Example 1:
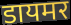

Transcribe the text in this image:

डायमर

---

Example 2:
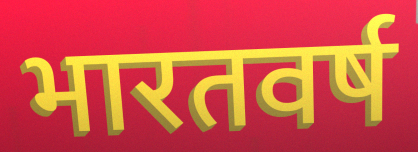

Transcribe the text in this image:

भारतवर्ष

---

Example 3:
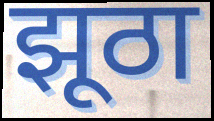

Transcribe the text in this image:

झूठा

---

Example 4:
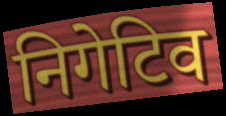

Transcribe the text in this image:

निगेटिव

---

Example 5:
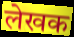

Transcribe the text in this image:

लेखक